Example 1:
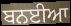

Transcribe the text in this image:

ਬਨਈਆ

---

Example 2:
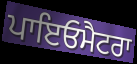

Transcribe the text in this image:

ਪਾਇਓਮੈਟਰਾ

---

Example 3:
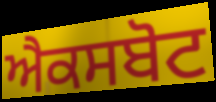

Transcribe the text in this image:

ਐਕਸਬੋਟ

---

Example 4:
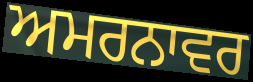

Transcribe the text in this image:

ਅਮਰਨਾਵਰ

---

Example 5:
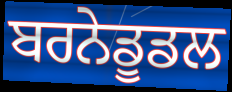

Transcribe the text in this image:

ਬਰਨੇਡੂਡਲ